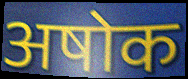
अषोक